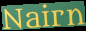
Nairn